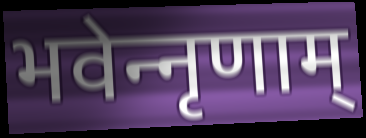
भवेन्नृणाम्